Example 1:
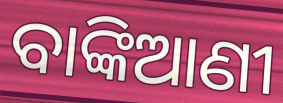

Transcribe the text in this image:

ବାଙ୍କିଆଣୀ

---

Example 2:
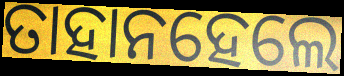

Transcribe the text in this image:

ତାହାନହେଲେ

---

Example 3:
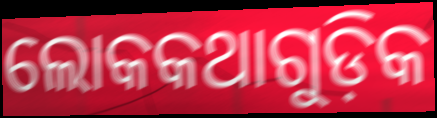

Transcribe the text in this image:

ଲୋକକଥାଗୁଡ଼ିକ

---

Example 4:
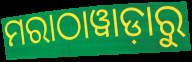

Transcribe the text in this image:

ମରାଠାୱାଡ଼ାରୁ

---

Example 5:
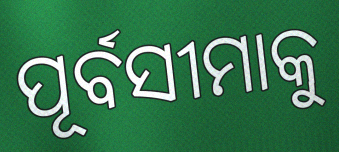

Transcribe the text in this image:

ପୂର୍ବସୀମାକୁ